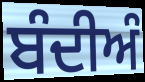
ਬੰਦੀਅੰ